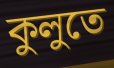
কুলুতে